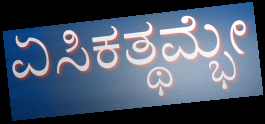
ಏಸಿಕತ್ಥಮ್ಭೇ